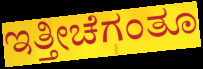
ಇತ್ತೀಚೆಗಂತೂ